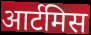
आर्टमिस